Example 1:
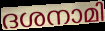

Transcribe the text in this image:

ദശനാമി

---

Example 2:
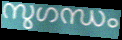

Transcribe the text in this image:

സുഗന്ധം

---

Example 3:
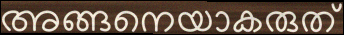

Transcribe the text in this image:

അങ്ങനെയാകരുത്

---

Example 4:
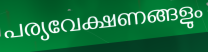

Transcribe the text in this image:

പര്യവേക്ഷണങ്ങളും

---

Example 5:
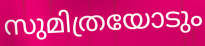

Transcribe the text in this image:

സുമിത്രയോടും